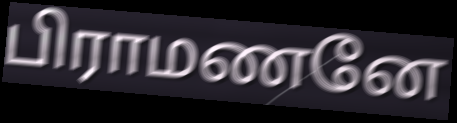
பிராமணனே